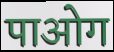
पाओग